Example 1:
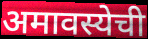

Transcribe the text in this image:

अमावस्येची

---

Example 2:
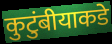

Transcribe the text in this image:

कुटुंबीयाकडे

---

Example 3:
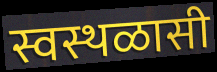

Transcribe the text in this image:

स्वस्थळासी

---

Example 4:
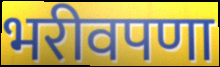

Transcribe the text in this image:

भरीवपणा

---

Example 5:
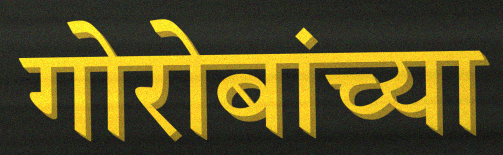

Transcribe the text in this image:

गोरोबांच्या